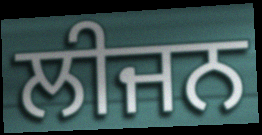
ਲੀਜਨ